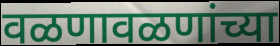
वळणावळणांच्या